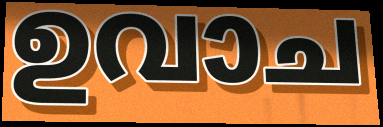
ഉവാച